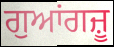
ਗੁਆਂਗਜ਼ੂ